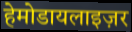
हेमोडायलाइज़र